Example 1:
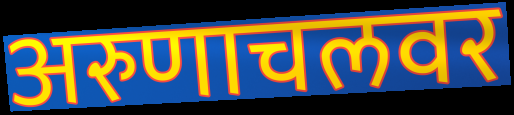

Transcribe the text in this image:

अरुणाचलवर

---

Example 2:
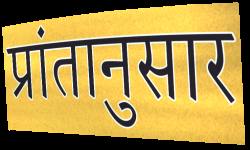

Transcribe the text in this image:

प्रांतानुसार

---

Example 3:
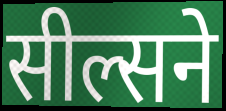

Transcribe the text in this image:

सील्सने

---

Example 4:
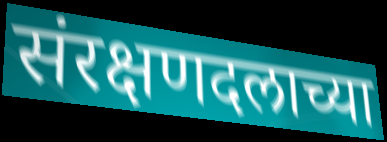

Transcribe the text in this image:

संरक्षणदलाच्या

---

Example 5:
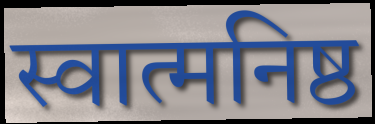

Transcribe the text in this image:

स्वात्मनिष्ठ